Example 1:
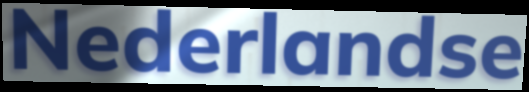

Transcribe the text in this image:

Nederlandse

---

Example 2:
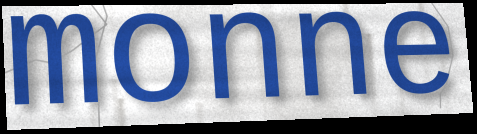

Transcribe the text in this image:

monne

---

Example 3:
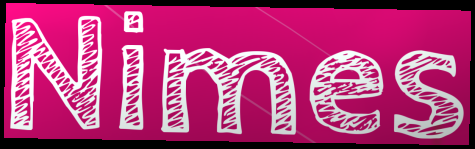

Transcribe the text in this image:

Nimes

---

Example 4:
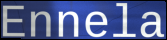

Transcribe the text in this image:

Ennela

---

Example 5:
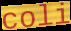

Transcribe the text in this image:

coli